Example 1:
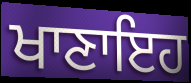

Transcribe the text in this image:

ਖਾਣਾਇਹ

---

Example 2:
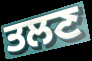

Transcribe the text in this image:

ਤਲਣ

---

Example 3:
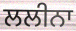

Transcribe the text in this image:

ਲਲੀਨਾ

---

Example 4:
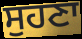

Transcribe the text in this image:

ਸੁਹਣਾ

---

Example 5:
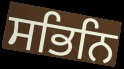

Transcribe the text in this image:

ਸਭਿਨਿ